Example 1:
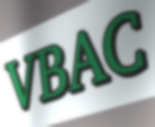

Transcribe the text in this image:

VBAC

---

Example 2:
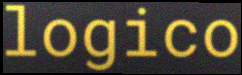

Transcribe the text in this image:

logico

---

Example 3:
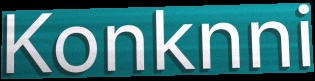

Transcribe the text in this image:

Konknni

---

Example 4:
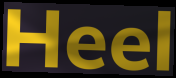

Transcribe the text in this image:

Heel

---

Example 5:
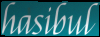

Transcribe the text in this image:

hasibul